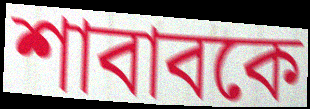
শাবাবকে